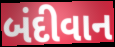
બંદીવાન